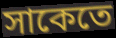
সাকেতে